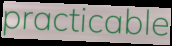
practicable